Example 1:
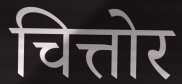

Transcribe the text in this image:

चित्तोर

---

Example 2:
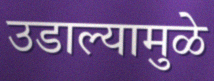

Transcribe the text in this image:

उडाल्यामुळे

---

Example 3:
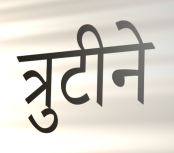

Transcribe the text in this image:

त्रुटीने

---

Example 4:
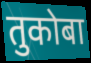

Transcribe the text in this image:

तुकोबा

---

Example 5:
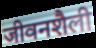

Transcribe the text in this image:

जीवनशैली